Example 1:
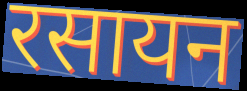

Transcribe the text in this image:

रसायन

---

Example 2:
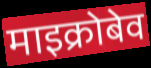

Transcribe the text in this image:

माइक्रोबेव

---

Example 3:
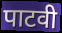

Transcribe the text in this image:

पाटवी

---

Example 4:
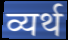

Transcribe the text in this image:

व्‍यर्थ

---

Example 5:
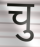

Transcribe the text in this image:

चु